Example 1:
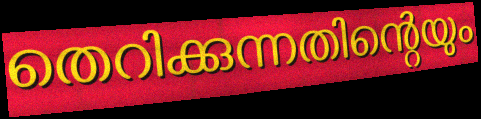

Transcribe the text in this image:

തെറിക്കുന്നതിന്റെയും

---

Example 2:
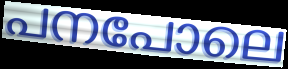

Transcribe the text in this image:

പനപോലെ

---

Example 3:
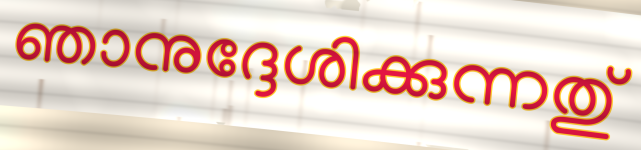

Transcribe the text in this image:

ഞാനുദ്ദേശിക്കുന്നതു്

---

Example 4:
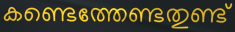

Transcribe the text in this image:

കണ്ടെത്തേണ്ടതുണ്ട്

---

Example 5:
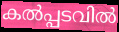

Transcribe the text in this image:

കൽപ്പടവിൽ